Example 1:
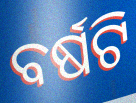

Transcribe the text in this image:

ବର୍ଷଟି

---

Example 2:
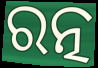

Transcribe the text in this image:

ରତ୍ନ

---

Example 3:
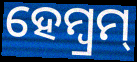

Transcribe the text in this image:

ହେମ୍ବ୍ରମ୍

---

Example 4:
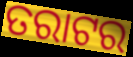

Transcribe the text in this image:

ତରାଟର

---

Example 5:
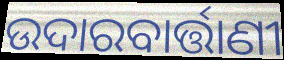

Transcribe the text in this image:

ଉଦାରବାର୍ତ୍ତାଣୀ